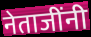
नेताजींनी